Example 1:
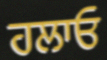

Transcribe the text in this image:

ਹਲਾਓ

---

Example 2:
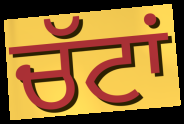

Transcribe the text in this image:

ਚੱਟਾਂ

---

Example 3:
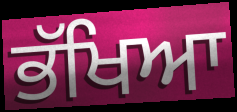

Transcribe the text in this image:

ਭੱਖਿਆ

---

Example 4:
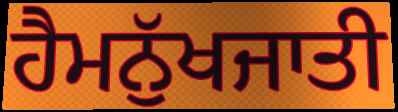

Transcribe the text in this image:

ਹੈਮਨੁੱਖਜਾਤੀ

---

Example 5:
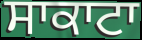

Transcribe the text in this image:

ਸਾਕਾਟਾ